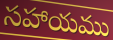
సహాయము